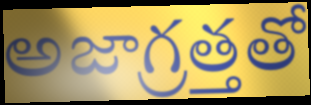
అజాగ్రత్తతో